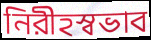
নিরীহস্বভাব